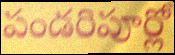
పండరిపూర్లో